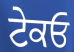
ਟੇਕਓ